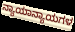
ನ್ಯಾಯಾನ್ಯಾಯಗಳ